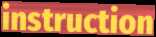
instruction